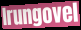
Irungovel